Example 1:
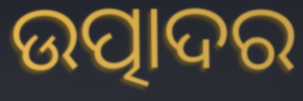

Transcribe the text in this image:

ଉତ୍ପାଦର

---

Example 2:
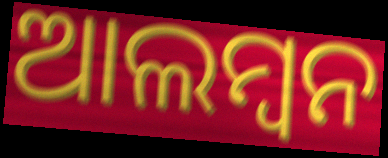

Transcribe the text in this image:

ଆଲମ୍ୱନ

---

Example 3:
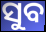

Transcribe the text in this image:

ସୁବ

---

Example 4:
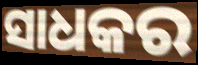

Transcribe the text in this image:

ସାଧକର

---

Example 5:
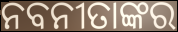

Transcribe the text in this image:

ନବନୀତାଙ୍କର